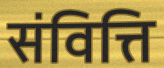
संवित्ति